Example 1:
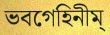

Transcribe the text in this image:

ভবগেহিনীম্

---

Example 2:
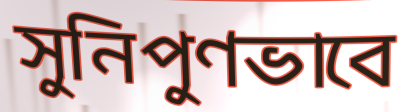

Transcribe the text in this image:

সুনিপুণভাবে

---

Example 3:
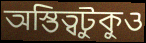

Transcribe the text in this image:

অস্তিত্বটুকুও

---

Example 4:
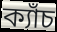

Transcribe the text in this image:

ক্যাঁচ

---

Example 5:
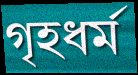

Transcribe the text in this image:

গৃহধর্ম